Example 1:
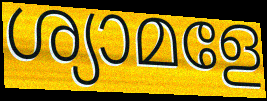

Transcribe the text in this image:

ശ്യാമളേ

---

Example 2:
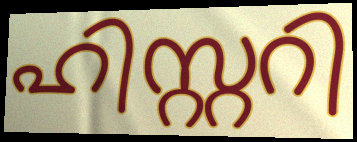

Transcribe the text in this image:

ഹിസ്റ്ററി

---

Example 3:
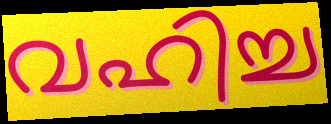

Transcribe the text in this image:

വഹിച്ച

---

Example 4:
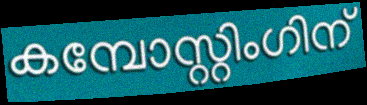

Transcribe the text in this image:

കമ്പോസ്റ്റിംഗിന്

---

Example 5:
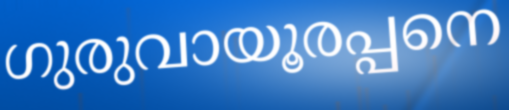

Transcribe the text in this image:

ഗുരുവായൂരപ്പനെ